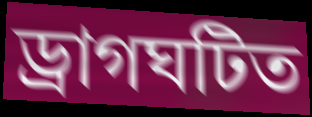
ড্রাগঘটিত